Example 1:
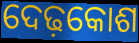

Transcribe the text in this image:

ଦେଢ଼କୋଶ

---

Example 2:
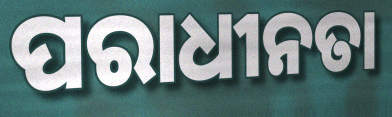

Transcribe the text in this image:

ପରାଧୀନତା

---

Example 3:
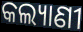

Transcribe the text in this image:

କଲ୍ୟାଣୀ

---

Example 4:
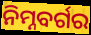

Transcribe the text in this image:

ନିମ୍ନବର୍ଗର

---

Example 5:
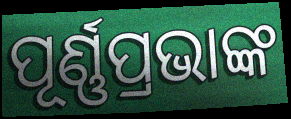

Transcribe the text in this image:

ପୂର୍ଣ୍ଣପ୍ରଭାଙ୍କ